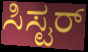
ಸಿಸ್ಟರ್